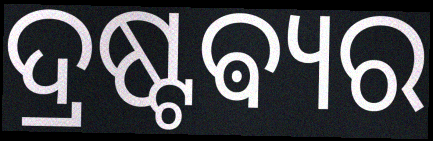
ଦ୍ରଷ୍ଟଵ୍ୟର